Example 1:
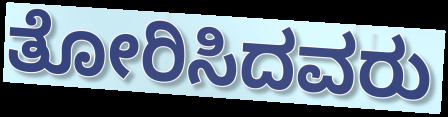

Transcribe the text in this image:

ತೋರಿಸಿದವರು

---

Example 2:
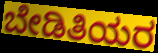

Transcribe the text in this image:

ಬೇಡಿತಿಯರ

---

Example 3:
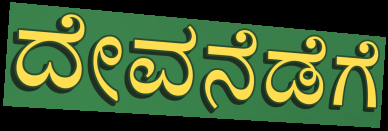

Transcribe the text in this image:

ದೇವನೆಡೆಗೆ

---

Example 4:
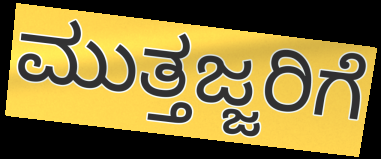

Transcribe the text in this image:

ಮುತ್ತಜ್ಜರಿಗೆ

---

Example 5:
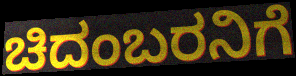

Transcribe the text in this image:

ಚಿದಂಬರನಿಗೆ